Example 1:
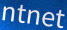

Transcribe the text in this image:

ntnet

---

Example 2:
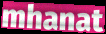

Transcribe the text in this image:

mhanat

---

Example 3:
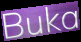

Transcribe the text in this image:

Buka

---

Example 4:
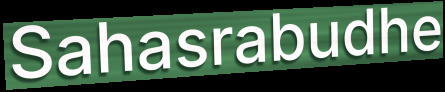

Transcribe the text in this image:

Sahasrabudhe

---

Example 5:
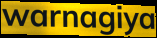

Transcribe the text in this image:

warnagiya